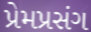
પ્રેમપ્રસંગ